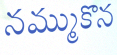
నమ్ముకొన